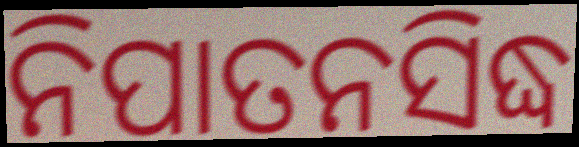
ନିପାତନସିଦ୍ଧ